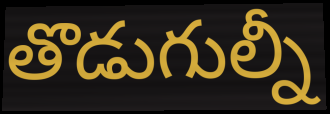
తొడుగుల్నీ